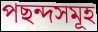
পছন্দসমূহ